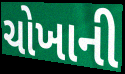
ચોખાની